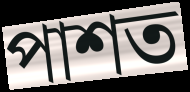
পাশত